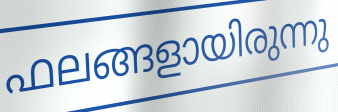
ഫലങ്ങളായിരുന്നു